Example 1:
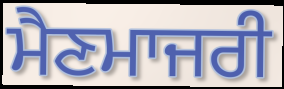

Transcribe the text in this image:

ਮੈਣਮਾਜਰੀ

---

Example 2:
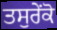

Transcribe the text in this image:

ਤਸੁਰੇਂਕੋ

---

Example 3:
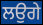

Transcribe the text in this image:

ਲਉਗੇ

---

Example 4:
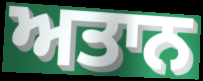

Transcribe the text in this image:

ਅਤਾਨ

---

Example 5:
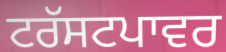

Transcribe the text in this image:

ਟਰੱਸਟਪਾਵਰ